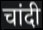
चांदी